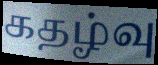
கதழ்வு